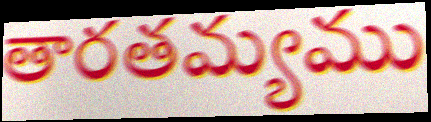
తారతమ్యము